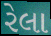
રેલા